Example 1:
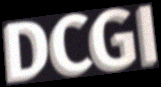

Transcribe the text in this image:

DCGI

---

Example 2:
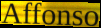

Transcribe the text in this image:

Affonso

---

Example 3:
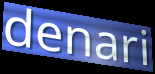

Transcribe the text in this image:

denari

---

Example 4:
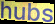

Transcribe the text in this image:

hubs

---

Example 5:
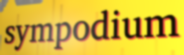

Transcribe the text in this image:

sympodium